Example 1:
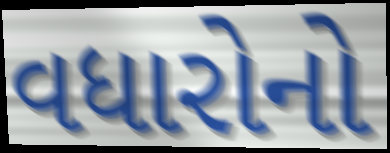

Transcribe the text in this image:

વધારોનો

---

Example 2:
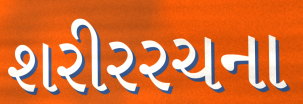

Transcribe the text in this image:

શરીરરચના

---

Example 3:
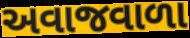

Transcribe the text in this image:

અવાજવાળા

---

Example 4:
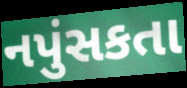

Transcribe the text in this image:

નપુંસકતા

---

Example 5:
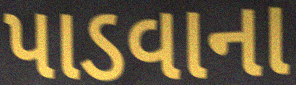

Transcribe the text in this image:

પાડવાના